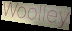
Woolley